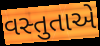
વસ્તુતાએ